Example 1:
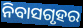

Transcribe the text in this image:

ନିବାସଗୃହର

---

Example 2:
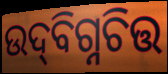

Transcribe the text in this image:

ଉଦ୍‌ବିଗ୍ନଚିତ୍ତ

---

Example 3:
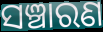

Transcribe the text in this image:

ସଞ୍ଚାରଣ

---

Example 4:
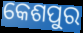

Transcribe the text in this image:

କେଶପୁର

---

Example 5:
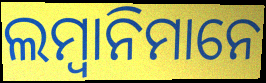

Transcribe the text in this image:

ଲମ୍ବାନିମାନେ